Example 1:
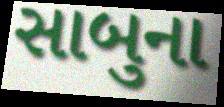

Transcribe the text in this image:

સાબુના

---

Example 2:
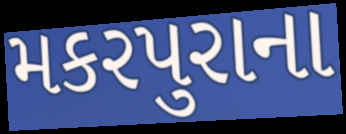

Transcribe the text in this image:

મકરપુરાના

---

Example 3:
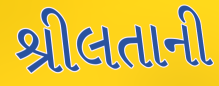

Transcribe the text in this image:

શ્રીલતાની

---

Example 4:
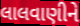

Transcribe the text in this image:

લાલવાણીને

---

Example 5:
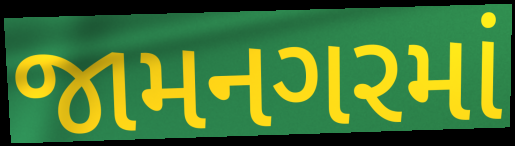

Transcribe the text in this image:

જામનગરમાં